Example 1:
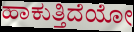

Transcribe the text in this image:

ಹಾಕುತ್ತಿದೆಯೋ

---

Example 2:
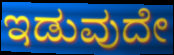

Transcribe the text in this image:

ಇಡುವುದೇ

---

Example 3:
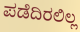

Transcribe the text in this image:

ಪಡೆದಿರಲಿಲ್ಲ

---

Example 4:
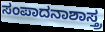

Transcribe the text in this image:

ಸಂಪಾದನಾಶಾಸ್ತ್ರ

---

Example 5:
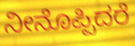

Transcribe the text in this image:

ನೀನೊಪ್ಪಿದರೆ